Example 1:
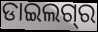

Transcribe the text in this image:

ଡାଇଲଗ୍‌ର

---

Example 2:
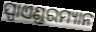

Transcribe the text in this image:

ସ୍ପାଏଣ୍ଡରମ୍ୟାନ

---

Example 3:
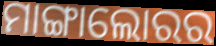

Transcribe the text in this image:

ମାଙ୍ଗାଲୋରର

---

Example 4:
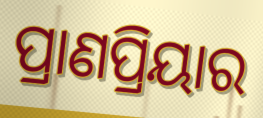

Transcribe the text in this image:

ପ୍ରାଣପ୍ରିୟାର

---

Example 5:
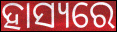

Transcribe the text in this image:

ହାସ୍ୟରେ